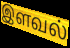
இளவல்